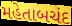
મહેતાબચંદ